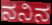
ನನಿನ